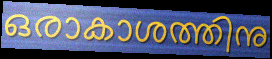
ഒരാകാശത്തിനു